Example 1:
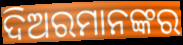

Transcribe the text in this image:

ଦିଅରମାନଙ୍କର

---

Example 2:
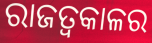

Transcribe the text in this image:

ରାଜତ୍ୱକାଳର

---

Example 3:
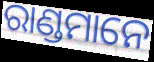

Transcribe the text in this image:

ରାଣ୍ଡମାନେ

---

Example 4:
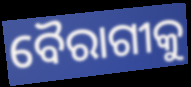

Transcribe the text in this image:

ବୈରାଗୀକୁ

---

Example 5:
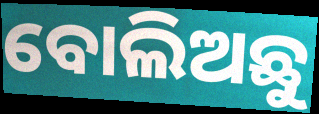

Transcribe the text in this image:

ବୋଲିଅଛୁ